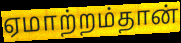
ஏமாற்றம்தான்